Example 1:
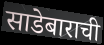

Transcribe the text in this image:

साडेबाराची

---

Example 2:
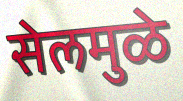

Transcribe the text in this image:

सेलमुळे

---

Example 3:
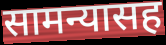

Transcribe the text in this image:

सामन्यासह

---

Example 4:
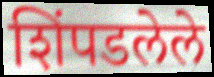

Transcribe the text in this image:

शिंपडलेले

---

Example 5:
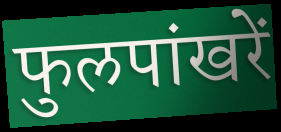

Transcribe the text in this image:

फुलपांखरें